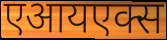
एआयएक्स